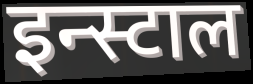
इन्स्टाल